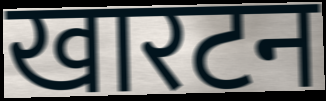
खारटन